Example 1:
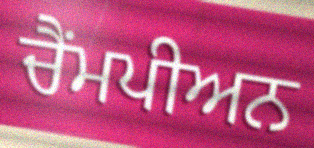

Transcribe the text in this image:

ਚੈਂਮਪੀਅਨ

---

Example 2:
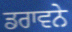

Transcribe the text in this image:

ਡਰਾਵਨੇ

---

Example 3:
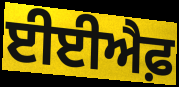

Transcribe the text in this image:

ਈਈਐਫ਼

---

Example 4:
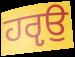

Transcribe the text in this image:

ਹਰੵਉ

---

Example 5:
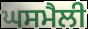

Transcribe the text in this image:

ਘਸਮੈਲੀ